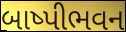
બાષ્પીભવન